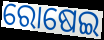
ରୋଷେଇ